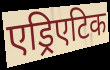
एड्रिएटिक